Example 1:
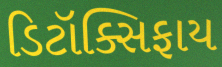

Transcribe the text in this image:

ડિટૉક્સિફાય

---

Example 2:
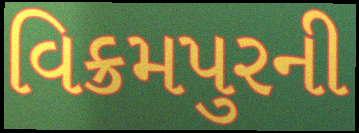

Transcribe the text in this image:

વિક્રમપુરની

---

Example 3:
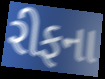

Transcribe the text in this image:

રીફના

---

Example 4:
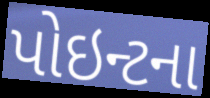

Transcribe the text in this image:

પોઇન્ટના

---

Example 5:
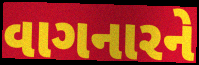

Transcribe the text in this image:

વાગનારને